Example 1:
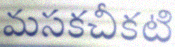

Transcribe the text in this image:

మసకచీకటి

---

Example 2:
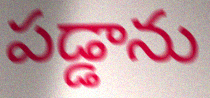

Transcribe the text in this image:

పడ్డాను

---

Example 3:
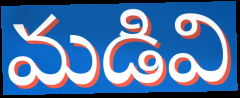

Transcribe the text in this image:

మడివి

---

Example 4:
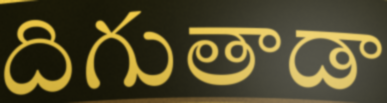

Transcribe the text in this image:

దిగుతాడా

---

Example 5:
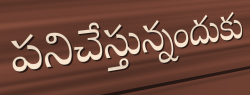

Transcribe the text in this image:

పనిచేస్తున్నందుకు